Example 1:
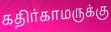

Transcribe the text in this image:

கதிர்காமருக்கு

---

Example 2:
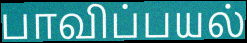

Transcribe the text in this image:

பாவிப்பயல்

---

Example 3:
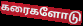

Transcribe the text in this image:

கரைகளோடு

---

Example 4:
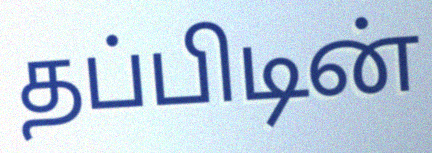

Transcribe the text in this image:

தப்பிடின்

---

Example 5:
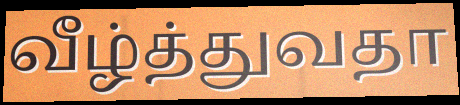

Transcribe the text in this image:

வீழ்த்துவதா